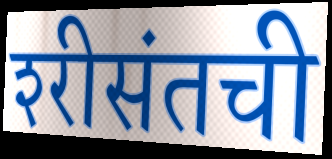
श्रीसंतची